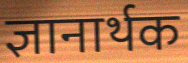
ज्ञानार्थक